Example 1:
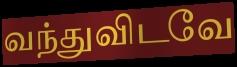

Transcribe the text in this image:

வந்துவிடவே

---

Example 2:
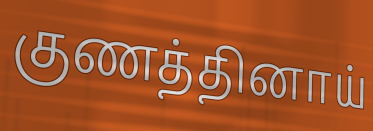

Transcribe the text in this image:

குணத்தினாய்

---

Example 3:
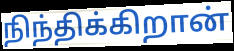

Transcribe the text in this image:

நிந்திக்கிறான்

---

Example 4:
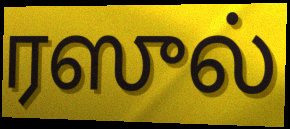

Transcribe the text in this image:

ரஸுல்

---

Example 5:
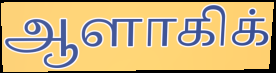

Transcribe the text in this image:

ஆளாகிக்